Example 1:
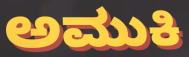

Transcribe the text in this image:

ಅಮುಕಿ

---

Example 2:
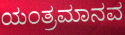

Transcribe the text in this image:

ಯಂತ್ರಮಾನವ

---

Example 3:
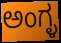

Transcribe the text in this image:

ಅಂಗ್ಳ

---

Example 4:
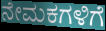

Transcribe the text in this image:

ನೇಮಕಗಳಿಗೆ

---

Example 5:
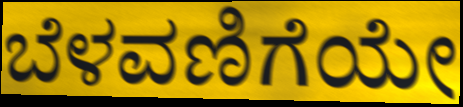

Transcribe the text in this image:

ಬೆಳವಣಿಗೆಯೇ